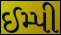
ઈમ્પી